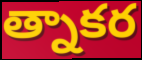
త్నాకర